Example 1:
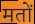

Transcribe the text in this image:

मतों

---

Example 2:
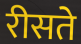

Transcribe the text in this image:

रीसते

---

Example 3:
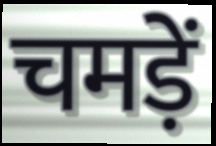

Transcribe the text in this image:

चमड़ें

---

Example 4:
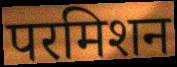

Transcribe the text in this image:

परमिशन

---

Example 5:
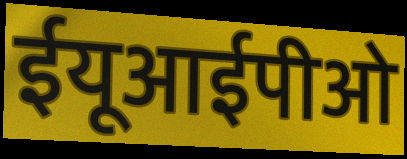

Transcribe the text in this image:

ईयूआईपीओ